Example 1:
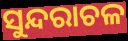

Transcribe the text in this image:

ସୁନ୍ଦରାଚଳ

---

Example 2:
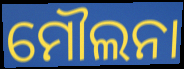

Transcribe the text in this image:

ମୌଲନା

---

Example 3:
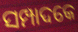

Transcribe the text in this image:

ସମ୍ପାଦକେ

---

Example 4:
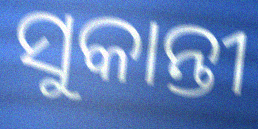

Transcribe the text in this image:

ସୁକାନ୍ତୀ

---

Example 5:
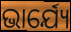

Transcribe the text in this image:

ଭାର୍ଯ୍ଯେ